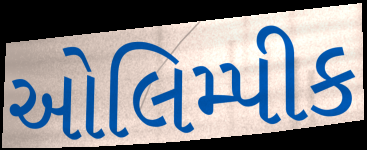
ઓલિમ્પીક